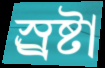
স্র্রষ্টা